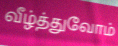
வீழ்த்துவோம்